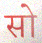
सो